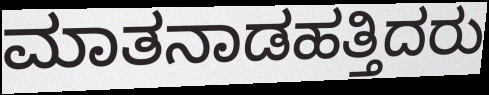
ಮಾತನಾಡಹತ್ತಿದರು